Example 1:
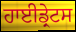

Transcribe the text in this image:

ਹਾਈਡ੍ਰੇਟਸ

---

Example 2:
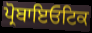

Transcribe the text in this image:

ਪ੍ਰੋਬਾਇਓਟਿਕ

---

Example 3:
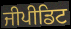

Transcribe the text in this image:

ਜੀਪੀਡਿਟ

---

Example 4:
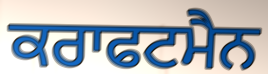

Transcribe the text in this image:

ਕਰਾਫਟਮੈਨ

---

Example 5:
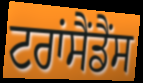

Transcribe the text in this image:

ਟਰਾਂਸੈਂਡੈਂਸ